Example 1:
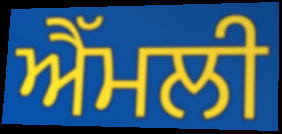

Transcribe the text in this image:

ਐੱਮਲੀ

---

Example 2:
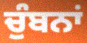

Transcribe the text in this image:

ਚੁੰਬਨਾਂ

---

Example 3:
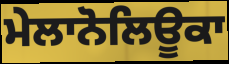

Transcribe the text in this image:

ਮੇਲਾਨੋਲਿਊਕਾ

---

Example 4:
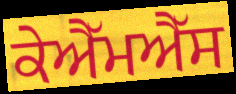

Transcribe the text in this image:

ਕੇਐੱਮਐੱਸ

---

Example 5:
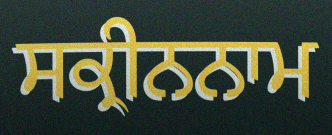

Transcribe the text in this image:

ਸਕ੍ਰੀਨਨਾਮ